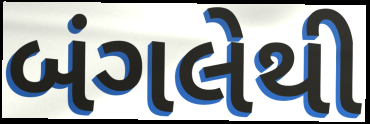
બંગલેથી